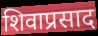
शिवाप्रसाद